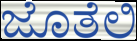
ಜೊತೆಲಿ